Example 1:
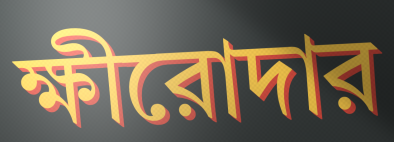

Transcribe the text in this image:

ক্ষীরোদার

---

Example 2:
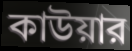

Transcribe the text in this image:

কাউয়ার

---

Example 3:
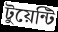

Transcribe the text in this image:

টুয়েন্টি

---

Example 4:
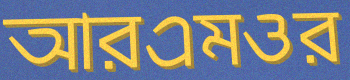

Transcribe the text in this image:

আরএমওর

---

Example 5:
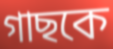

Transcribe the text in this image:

গাছকে